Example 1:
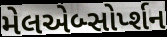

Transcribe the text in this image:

મેલએબ્સોર્પ્શન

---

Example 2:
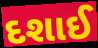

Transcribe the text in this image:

દશાઈ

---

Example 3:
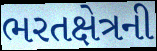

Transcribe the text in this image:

ભરતક્ષેત્રની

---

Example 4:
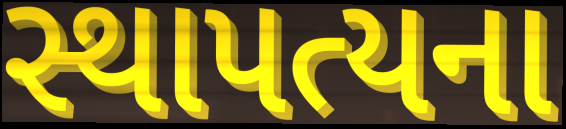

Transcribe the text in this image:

સ્થાપત્યના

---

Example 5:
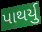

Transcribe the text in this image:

પાથર્યુ